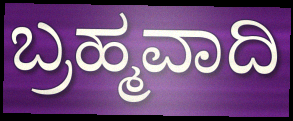
ಬ್ರಹ್ಮವಾದಿ